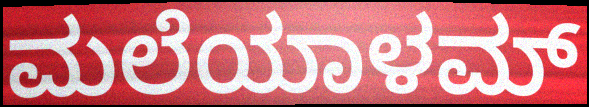
ಮಲೆಯಾಳಮ್